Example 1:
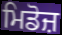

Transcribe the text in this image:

ਮਿਡੋਜ਼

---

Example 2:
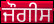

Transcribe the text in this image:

ਜੌਗੀਸ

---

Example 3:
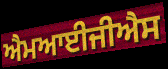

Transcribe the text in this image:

ਐਮਆਈਜੀਐਸ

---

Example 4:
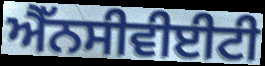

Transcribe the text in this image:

ਐੱਨਸੀਵੀਈਟੀ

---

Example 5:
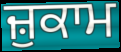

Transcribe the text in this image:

ਜ਼ੁਕਾਮ